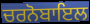
ਚਰਨੋਬਾਇਲ